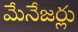
మేనేజర్లు